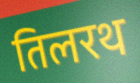
तिलरथ